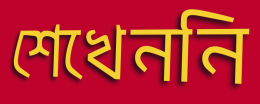
শেখেননি